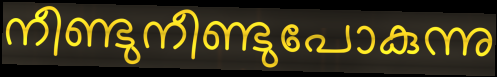
നീണ്ടുനീണ്ടുപോകുന്നു